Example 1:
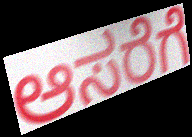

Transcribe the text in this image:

ಆಸರೆಗೆ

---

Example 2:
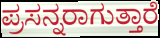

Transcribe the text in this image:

ಪ್ರಸನ್ನರಾಗುತ್ತಾರೆ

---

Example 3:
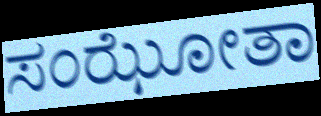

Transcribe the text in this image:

ಸಂಝೋತಾ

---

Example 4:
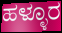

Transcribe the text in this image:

ಹಳ್ಳೂರ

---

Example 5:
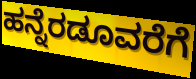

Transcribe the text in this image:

ಹನ್ನೆರಡೂವರೆಗೆ